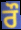
ਰੌ